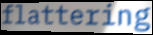
flattering